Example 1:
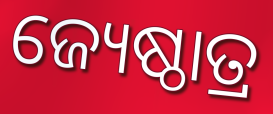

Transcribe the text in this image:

ଜ୍ୟେଷ୍ଠାତ୍ର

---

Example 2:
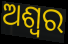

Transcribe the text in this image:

ଅଶ୍ୱର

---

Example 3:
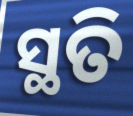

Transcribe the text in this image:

ସ୍ଥତି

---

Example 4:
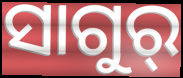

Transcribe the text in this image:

ସାଗୁର୍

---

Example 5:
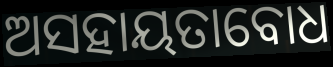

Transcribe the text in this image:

ଅସହାୟତାବୋଧ